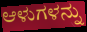
ಆಳುಗಳನ್ನು